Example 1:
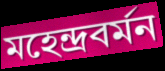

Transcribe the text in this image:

মহেন্দ্রবর্মন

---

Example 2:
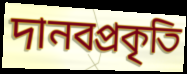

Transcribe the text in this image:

দানবপ্রকৃতি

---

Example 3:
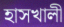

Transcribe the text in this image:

হাসখালী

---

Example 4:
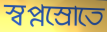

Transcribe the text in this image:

স্বপ্নস্রোতে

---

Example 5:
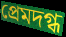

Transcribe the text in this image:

প্রেমদগ্ধ